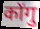
कोंगु